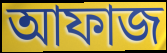
আফাজ